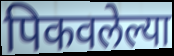
पिकवलेल्या